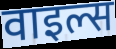
वाइल्स